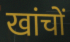
खांचों